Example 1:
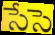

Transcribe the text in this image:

సేసె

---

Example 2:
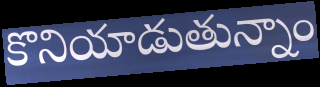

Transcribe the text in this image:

కొనియాడుతున్నాం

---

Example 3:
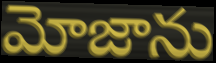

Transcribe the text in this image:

మోజాను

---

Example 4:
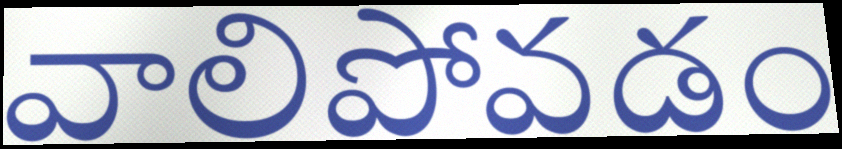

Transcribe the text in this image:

వాలిపోవడం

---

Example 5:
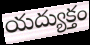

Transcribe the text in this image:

యద్యుక్తం